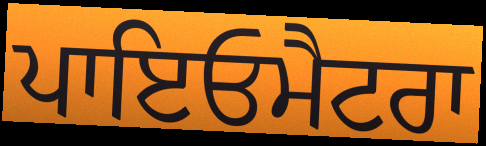
ਪਾਇਓਮੈਟਰਾ